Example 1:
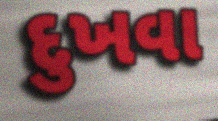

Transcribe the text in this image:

દુખવા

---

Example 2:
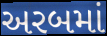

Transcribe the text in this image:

અરબમાં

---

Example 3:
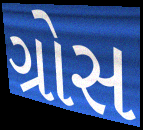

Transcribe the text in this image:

ગ્રોસ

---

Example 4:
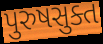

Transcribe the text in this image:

પુરુષસુક્ત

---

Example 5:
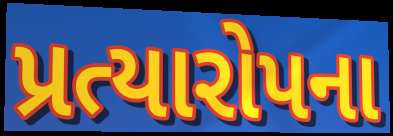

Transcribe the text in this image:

પ્રત્યારોપના